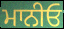
ਮਾਨੀਓ